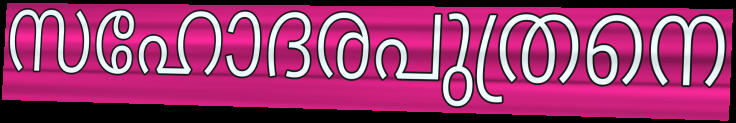
സഹോദരപുത്രനെ